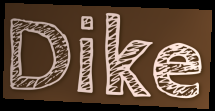
Dike